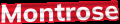
Montrose